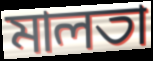
মালতা